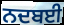
ਨਦਬਈ